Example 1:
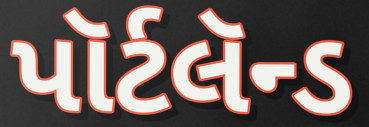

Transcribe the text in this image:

પૉર્ટલૅન્ડ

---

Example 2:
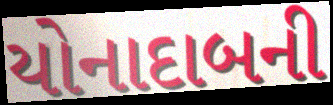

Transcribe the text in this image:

યોનાદાબની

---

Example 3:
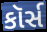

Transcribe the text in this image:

કૉર્સ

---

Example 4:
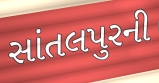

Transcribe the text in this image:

સાંતલપુરની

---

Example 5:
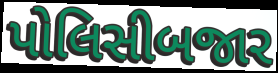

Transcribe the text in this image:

પોલિસીબજાર